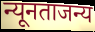
न्यूनताजन्य